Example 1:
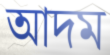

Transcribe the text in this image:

আদম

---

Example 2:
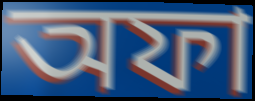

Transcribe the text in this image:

অফা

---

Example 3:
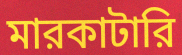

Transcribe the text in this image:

মারকাটারি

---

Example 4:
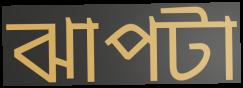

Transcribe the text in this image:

ঝাপটা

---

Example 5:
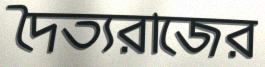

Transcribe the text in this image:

দৈত্যরাজের